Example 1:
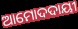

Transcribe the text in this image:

ଆମୋଦଦାୟୀ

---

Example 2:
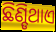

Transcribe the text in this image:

ଛିଣ୍ଡିଥାଏ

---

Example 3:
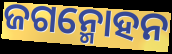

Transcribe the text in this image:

ଜଗନ୍ମୋହନ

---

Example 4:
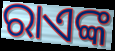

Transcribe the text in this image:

ରାଏଙ୍କ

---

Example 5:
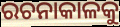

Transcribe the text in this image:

ରଚନାକାଳକୁ